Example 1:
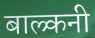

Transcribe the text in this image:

बाल्कनी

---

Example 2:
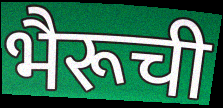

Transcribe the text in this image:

भैरूची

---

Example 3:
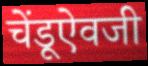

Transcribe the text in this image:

चेंडूऐवजी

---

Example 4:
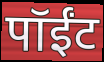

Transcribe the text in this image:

पॉईंट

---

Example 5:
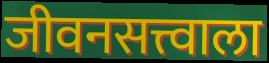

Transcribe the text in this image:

जीवनसत्त्वाला